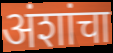
अंशांचा